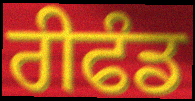
ਰੀਫੰਡ